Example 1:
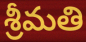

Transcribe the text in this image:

శ్రీమతి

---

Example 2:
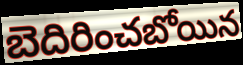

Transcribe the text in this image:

బెదిరించబోయిన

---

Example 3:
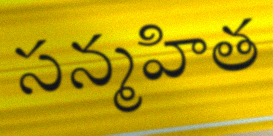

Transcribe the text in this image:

సన్మహిత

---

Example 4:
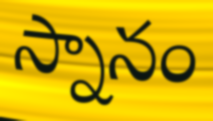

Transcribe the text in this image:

స్నానం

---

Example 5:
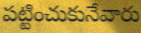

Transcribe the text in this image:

పట్టించుకునేవారు